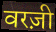
वरज़ी